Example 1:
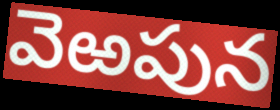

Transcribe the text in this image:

వెఱపున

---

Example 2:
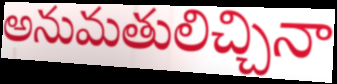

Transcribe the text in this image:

అనుమతులిచ్చినా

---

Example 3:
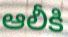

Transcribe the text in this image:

ఆలీకి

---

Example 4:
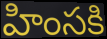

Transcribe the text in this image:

హింసకి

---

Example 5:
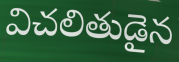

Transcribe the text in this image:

విచలితుడైన